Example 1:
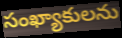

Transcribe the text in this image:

సంఖ్యాకులను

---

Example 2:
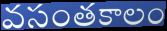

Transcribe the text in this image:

వసంతకాలం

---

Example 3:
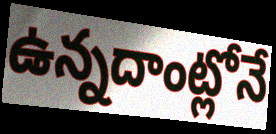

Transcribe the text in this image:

ఉన్నదాంట్లోనే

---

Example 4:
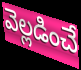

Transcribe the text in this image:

వెల్లడించే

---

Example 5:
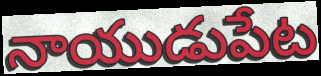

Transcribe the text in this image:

నాయుడుపేట